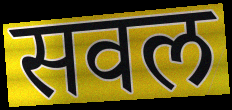
सवल